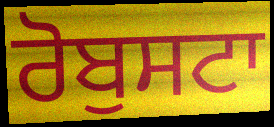
ਰੋਬੁਸਟਾ